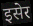
इसेर